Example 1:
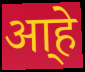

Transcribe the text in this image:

आ्हे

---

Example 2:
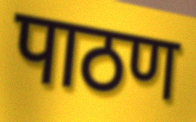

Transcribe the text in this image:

पाठण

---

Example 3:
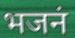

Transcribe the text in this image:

भजनं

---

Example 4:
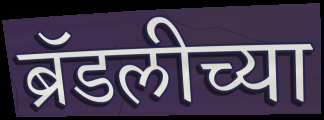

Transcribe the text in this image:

ब्रॅडलीच्या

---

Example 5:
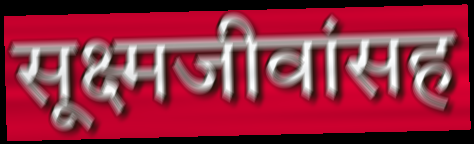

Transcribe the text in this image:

सूक्ष्मजीवांसह